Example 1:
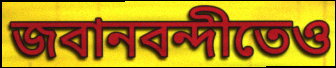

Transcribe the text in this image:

জবানবন্দীতেও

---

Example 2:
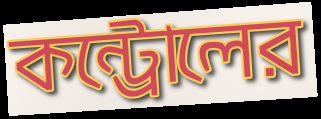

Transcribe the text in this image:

কন্ট্রোলের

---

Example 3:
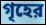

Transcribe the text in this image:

গৃহের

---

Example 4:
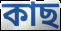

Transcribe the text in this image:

কাছ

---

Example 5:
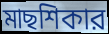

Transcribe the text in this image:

মাছশিকার